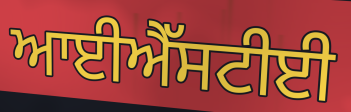
ਆਈਐੱਸਟੀਈ